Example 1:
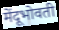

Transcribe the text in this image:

मेंदूभोवती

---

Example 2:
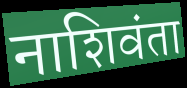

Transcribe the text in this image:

नाशिवंता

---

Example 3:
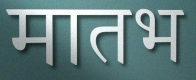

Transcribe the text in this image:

मातभ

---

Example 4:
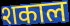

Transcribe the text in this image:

शकाल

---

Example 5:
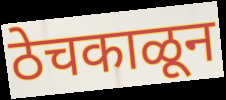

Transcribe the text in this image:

ठेचकाळून